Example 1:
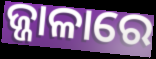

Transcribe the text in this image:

ଜ୍ଜାଳାରେ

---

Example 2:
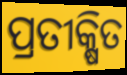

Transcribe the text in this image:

ପ୍ରତୀକ୍ଷିତ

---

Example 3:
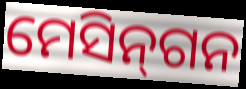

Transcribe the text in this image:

ମେସିନ୍‌ଗନ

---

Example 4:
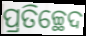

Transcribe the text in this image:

ପ୍ରତିଚ୍ଛେଦ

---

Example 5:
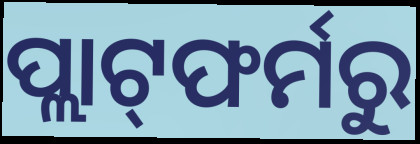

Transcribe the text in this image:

ପ୍ଲାଟ୍‌ଫର୍ମରୁ